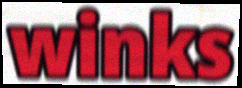
winks